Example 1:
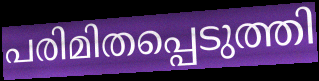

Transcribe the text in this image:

പരിമിതപ്പെടുത്തി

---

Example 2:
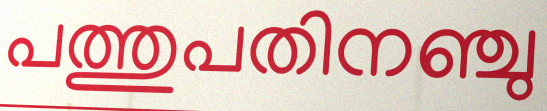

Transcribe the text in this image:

പത്തുപതിനഞ്ചു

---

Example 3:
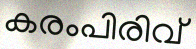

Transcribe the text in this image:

കരംപിരിവ്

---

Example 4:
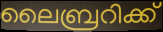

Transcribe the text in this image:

ലൈബ്രറിക്ക്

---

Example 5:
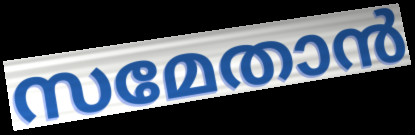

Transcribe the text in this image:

സമേതാൻ